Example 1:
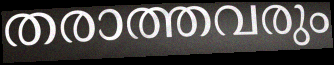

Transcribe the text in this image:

തരാത്തവരും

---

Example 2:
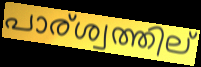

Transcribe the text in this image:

പാര്ശ്വത്തില്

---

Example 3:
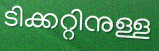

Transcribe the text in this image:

ടിക്കറ്റിനുള്ള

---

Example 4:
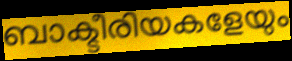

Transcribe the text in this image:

ബാക്ടീരിയകളേയും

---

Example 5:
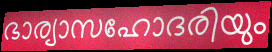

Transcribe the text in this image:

ഭാര്യാസഹോദരിയും